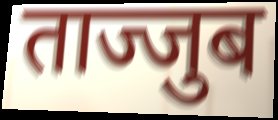
ताज्जुब